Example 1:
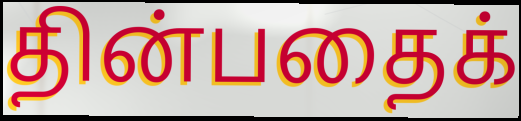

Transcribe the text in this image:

தின்பதைக்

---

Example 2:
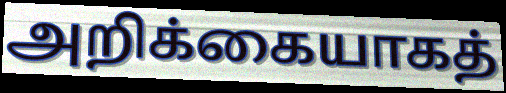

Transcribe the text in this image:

அறிக்கையாகத்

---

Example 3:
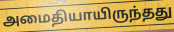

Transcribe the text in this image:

அமைதியாயிருந்தது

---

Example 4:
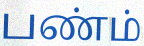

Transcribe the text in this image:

பண்ம்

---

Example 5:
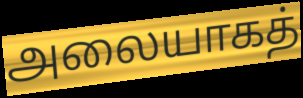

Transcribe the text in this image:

அலையாகத்